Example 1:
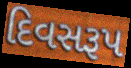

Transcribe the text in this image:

દિવસરૂપ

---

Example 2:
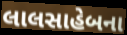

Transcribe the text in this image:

લાલસાહેબના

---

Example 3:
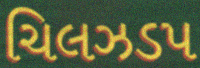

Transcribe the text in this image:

ચિલઝડપ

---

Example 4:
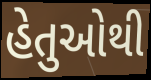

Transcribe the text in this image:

હેતુઓથી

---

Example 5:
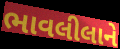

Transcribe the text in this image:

ભાવલીલાને